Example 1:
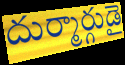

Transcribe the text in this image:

దుర్మార్గుడై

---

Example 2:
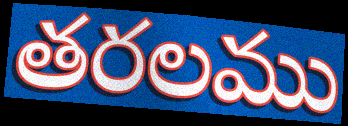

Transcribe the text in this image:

తరలము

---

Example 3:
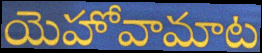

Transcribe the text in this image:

యెహోవామాట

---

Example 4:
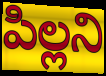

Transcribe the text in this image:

పిల్లని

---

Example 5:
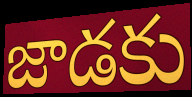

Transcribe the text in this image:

జాడకు